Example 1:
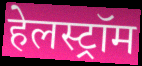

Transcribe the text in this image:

हेलस्ट्रॉम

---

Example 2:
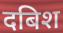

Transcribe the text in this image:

दबिश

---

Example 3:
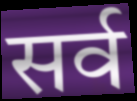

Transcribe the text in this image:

सर्व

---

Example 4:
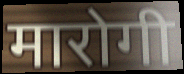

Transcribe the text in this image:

मारोगी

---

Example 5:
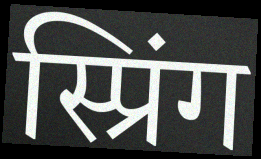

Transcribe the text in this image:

स्प्रिंग